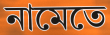
নামেতে